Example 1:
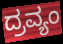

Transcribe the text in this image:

ದ್ರವ್ಯಂ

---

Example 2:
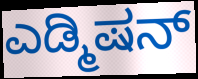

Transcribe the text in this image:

ಎಡ್ಮಿಷನ್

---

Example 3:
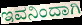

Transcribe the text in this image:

ಇವನಿಂದಾಗಿ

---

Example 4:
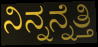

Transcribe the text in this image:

ನಿನ್ನನ್ನೆತ್ತಿ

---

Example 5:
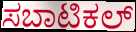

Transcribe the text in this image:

ಸಬಾಟಿಕಲ್